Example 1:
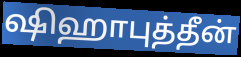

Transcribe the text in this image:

ஷிஹாபுத்தீன்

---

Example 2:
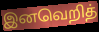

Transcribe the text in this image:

இனவெறித்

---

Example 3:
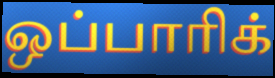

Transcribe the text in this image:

ஒப்பாரிக்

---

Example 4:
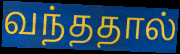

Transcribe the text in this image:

வந்ததால்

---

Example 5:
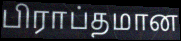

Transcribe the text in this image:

பிராப்தமான